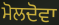
ਮੋਲਦੋਵਾ